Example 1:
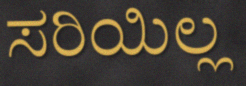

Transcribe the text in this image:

ಸರಿಯಿಲ್ಲ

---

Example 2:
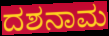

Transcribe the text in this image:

ದಶನಾಮ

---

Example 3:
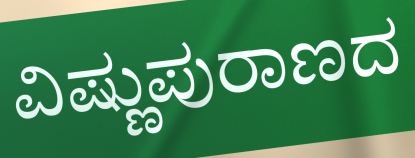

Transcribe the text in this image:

ವಿಷ್ಣುಪುರಾಣದ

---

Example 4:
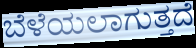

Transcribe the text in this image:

ಬೆಳೆಯಲಾಗುತ್ತದೆ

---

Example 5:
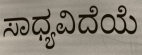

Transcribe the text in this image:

ಸಾಧ್ಯವಿದೆಯೆ